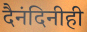
दैनंदिनीही